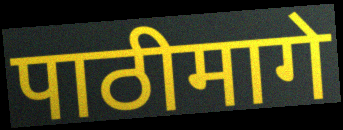
पाठीमागे